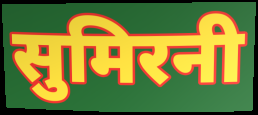
सुमिरनी